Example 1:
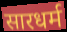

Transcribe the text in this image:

सारधर्म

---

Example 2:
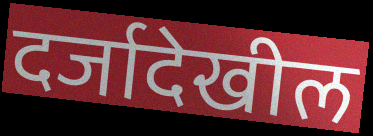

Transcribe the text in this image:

दर्जादेखील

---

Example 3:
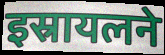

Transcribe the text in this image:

इस्रायलने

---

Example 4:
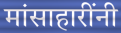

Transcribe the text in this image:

मांसाहारींनी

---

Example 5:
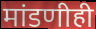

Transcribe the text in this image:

मांडणीही